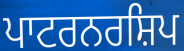
ਪਾਟਰਨਰਸ਼ਿਪ